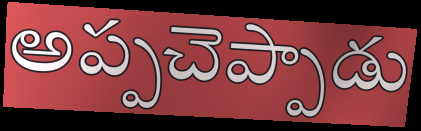
అప్పచెప్పాడు